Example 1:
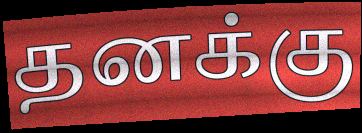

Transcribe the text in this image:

தனக்கு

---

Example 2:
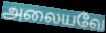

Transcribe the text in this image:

அலையவே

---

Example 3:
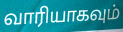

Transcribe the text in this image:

வாரியாகவும்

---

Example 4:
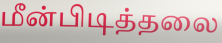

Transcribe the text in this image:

மீன்பிடித்தலை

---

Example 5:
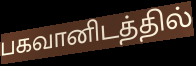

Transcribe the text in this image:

பகவானிடத்தில்